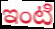
ఇంటి